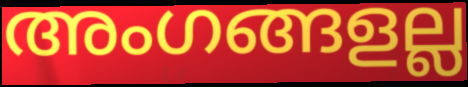
അംഗങ്ങളല്ല